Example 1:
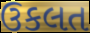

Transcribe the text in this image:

ઉકલત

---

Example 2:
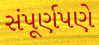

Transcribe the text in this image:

સંપૂર્ણપણે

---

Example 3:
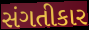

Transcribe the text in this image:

સંગતીકાર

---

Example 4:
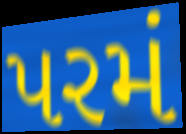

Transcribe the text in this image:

પરમં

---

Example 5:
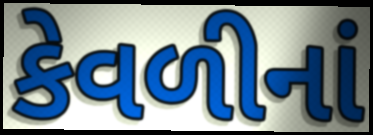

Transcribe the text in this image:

કેવળીનાં